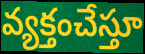
వ్యక్తంచేస్తూ